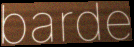
barde